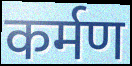
कर्मण